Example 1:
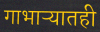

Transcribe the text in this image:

गाभाऱ्यातही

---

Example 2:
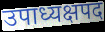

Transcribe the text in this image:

उपाध्यक्षपद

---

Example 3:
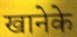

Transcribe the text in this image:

खानेके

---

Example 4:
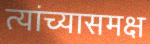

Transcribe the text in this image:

त्यांच्यासमक्ष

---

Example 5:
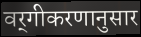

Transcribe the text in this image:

वर्गीकरणानुसार